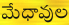
మేధావుల